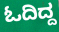
ಓದಿದ್ದ